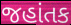
જહાંતક